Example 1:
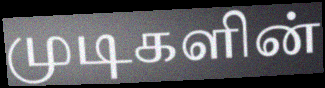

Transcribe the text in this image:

முடிகளின்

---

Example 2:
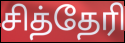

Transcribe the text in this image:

சித்தேரி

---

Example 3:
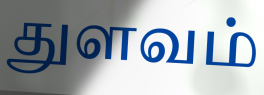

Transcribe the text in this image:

துளவம்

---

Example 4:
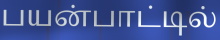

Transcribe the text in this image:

பயன்பாட்டில்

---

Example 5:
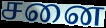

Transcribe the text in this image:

சனை